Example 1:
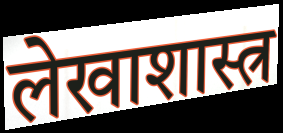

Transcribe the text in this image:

लेखाशास्त्र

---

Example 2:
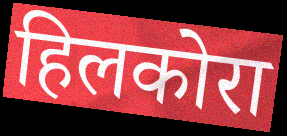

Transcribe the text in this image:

हिलकोरा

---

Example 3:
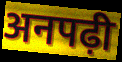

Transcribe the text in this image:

अनपढ़ी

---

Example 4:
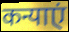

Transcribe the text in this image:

कन्याएं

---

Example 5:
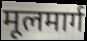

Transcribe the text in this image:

मूलमार्ग